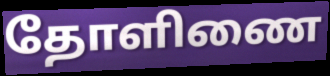
தோளிணை